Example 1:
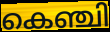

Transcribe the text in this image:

കെഞ്ചി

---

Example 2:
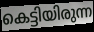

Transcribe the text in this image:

കെട്ടിയിരുന്ന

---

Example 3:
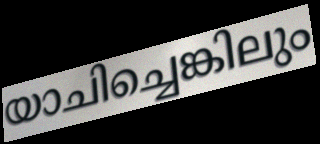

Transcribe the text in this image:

യാചിച്ചെങ്കിലും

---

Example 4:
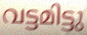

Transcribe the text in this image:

വട്ടമിട്ടു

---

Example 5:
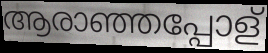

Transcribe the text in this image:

ആരാഞ്ഞപ്പോള്